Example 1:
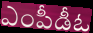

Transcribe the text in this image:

ఎంపీడీఓ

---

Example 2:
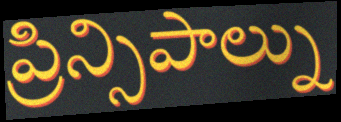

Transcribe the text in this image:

ప్రిన్సిపాల్ను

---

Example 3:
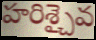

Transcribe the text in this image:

హరిశ్చైవ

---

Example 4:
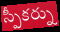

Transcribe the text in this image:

స్పీకర్ను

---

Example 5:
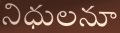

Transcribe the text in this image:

నిధులనూ